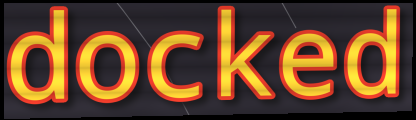
docked